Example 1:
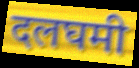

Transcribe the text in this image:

दलघमी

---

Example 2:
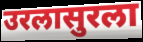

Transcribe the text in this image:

उरलासुरला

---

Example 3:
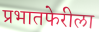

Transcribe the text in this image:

प्रभातफेरीला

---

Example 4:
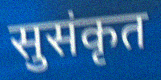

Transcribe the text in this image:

सुसंकृत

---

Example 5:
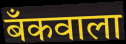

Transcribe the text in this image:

बँकवाला